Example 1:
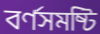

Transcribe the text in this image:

বৰ্ণসমষ্টি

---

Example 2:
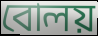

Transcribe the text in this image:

বোলয়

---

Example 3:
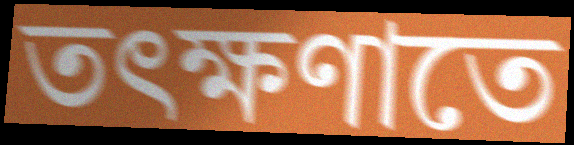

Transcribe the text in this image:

তৎক্ষণাতে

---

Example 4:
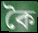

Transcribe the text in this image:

কৈ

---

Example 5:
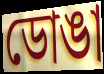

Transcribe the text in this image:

ডোঙা